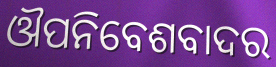
ଔପନିବେଶବାଦର